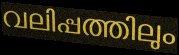
വലിപ്പത്തിലും